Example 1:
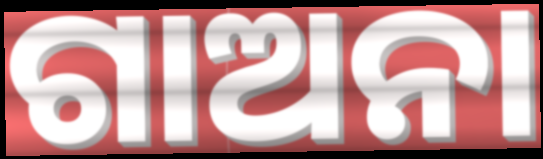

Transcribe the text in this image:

ଗାଅନା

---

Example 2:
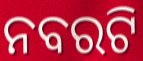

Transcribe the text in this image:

ନବରଟି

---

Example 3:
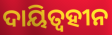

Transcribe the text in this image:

ଦାୟିତ୍ଵହୀନ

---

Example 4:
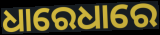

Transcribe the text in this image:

ଧାରେଧାରେ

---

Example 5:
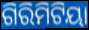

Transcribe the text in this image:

ଗିରିମିଟିୟା